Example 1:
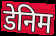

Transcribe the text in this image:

डेनिम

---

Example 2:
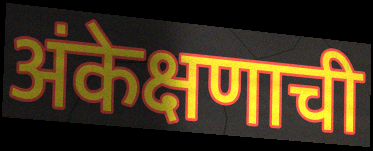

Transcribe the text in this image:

अंकेक्षणाची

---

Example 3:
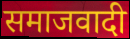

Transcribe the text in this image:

समाजवादी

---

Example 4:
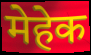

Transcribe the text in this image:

मेहेक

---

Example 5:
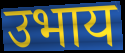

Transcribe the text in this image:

उभाय